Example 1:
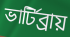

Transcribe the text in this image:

ভার্টিব্রায়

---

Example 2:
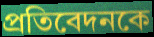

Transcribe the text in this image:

প্রতিবেদনকে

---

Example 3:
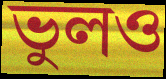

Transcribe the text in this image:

ভুলও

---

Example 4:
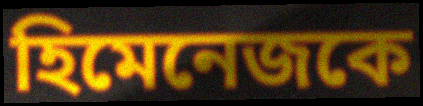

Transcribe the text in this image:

হিমেনেজকে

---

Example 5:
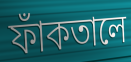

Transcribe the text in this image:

ফাঁকতালে